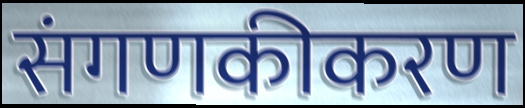
संगणकीकरण